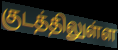
குடத்திலுள்ள